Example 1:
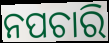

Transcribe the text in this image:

ନପଚାରି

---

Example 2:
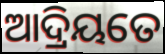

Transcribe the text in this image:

ଆଦ୍ରିୟତେ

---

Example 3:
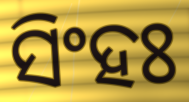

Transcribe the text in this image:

ସିଂହଃ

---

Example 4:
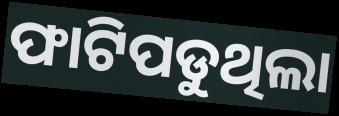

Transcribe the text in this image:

ଫାଟିପଡୁଥିଲା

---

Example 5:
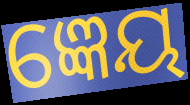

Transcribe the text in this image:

ଜ୍ଞେୟ